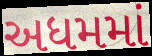
અધમમાં